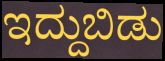
ಇದ್ದುಬಿಡು